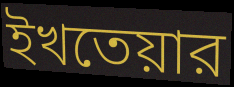
ইখতেয়ার